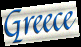
Greece